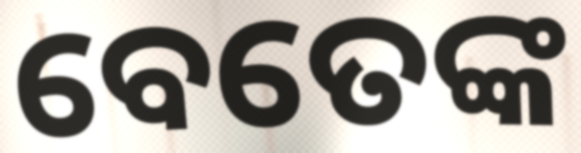
ବେତେଙ୍କ